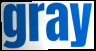
gray